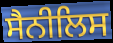
ਸੈਨੀਲਿਸ